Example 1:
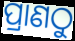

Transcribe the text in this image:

ପ୍ରାଣଠୁ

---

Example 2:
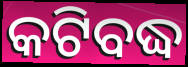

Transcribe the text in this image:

କଟିବଦ୍ଧ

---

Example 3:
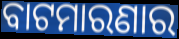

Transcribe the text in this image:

ବାଟମାରଣାର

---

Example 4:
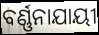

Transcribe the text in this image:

ବର୍ଣ୍ଣନାଯାୟୀ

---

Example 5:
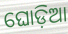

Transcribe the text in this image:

ଘୋଡ଼ିଆ